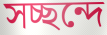
সচ্ছন্দে